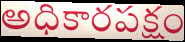
అధికారపక్షం